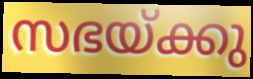
സഭയ്ക്കു